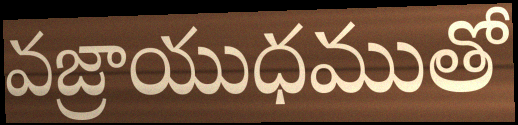
వజ్రాయుధముతో